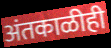
अंतकाळीही